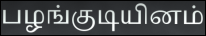
பழங்குடியினம்